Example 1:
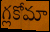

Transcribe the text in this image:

గ్లకోమా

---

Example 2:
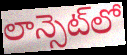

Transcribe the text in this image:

లాన్సెట్‌లో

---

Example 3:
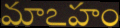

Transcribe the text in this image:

మాఽహం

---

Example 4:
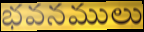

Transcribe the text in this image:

భవనములు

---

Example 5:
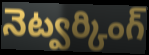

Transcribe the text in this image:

నెట్వర్కింగ్